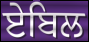
ਏਬਿਲ